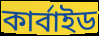
কার্বাইড